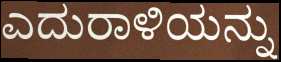
ಎದುರಾಳಿಯನ್ನು